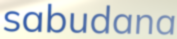
sabudana